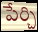
పేర్చి